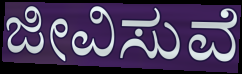
ಜೀವಿಸುವೆ